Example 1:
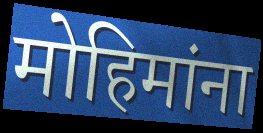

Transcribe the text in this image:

मोहिमांना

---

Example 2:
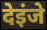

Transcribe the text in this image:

देइंजे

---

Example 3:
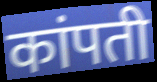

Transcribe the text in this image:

कांपती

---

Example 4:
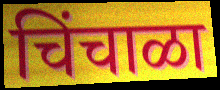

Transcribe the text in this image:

चिंचाळा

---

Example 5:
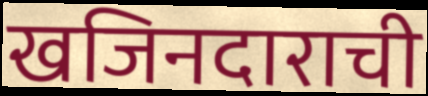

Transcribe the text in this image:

खजिनदाराची